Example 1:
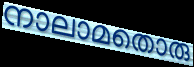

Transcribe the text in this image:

നാലാമതൊരു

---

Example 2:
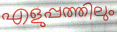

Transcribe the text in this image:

എളുപ്പത്തിലും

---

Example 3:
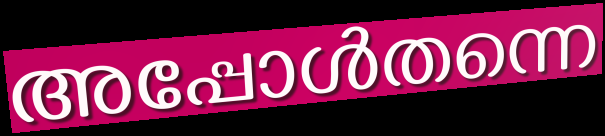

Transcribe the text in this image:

അപ്പോൾതന്നെ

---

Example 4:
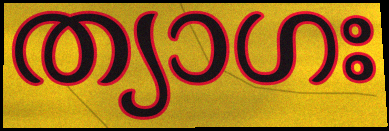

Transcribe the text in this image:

ത്യാഗഃ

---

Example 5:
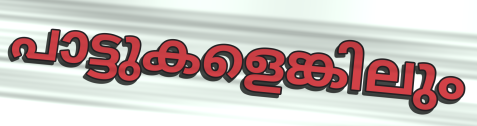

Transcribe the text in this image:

പാട്ടുകളെങ്കിലും